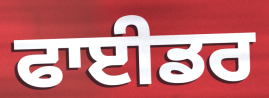
ਫਾਈਡਰ